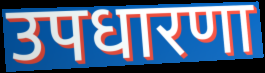
उपधारणा